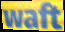
waft